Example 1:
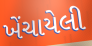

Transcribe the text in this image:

ખેંચાયેલી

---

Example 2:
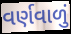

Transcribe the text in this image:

વર્ણવાળું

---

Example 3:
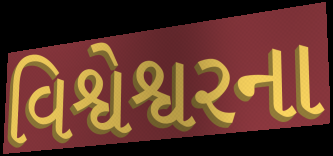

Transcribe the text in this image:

વિશ્વેશ્વરના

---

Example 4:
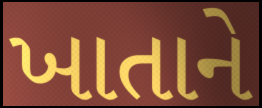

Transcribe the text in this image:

ખાતાને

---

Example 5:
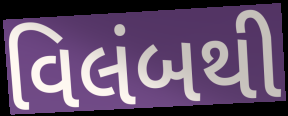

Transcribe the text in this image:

વિલંબથી